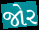
જોર